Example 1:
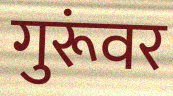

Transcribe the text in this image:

गुरूंवर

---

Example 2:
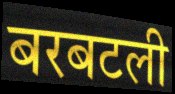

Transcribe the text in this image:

बरबटली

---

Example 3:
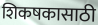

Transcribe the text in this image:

शिकषकासाठी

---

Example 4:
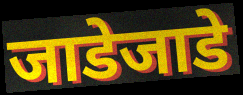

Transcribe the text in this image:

जाडेजाडे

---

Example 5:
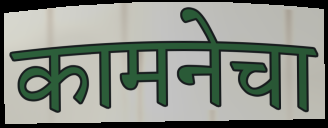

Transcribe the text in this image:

कामनेचा